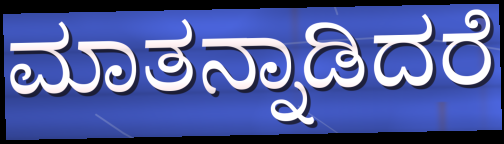
ಮಾತನ್ನಾಡಿದರೆ